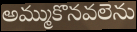
అమ్ముకొనవలెను